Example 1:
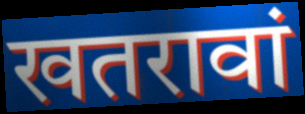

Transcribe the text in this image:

खतरावां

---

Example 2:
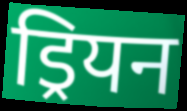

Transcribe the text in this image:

ड्रियन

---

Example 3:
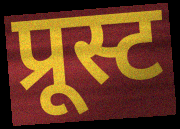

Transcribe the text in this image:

प्रूस्ट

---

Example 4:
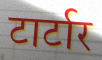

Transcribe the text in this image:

टार्टार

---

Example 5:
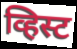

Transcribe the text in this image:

व्हिस्ट